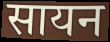
सायन